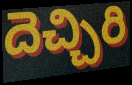
దెచ్చిరి